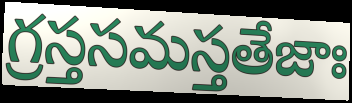
గ్రస్తసమస్తతేజాః